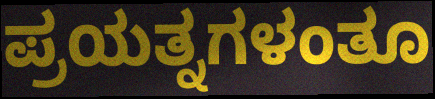
ಪ್ರಯತ್ನಗಳಂತೂ